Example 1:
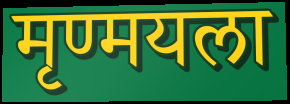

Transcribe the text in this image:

मृण्मयला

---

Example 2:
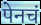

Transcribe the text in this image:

पेनचं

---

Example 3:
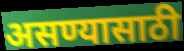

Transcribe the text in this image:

असण्यासाठी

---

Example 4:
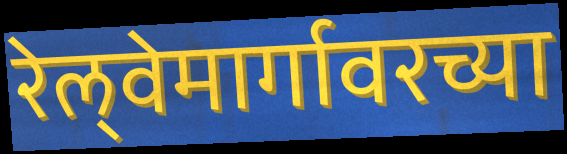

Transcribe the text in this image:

रेल्वेमार्गावरच्या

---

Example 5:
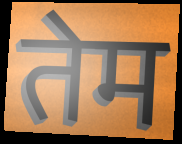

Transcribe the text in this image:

तेम